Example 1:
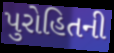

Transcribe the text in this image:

પુરોહિતની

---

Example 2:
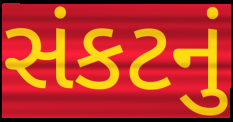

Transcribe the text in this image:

સંકટનું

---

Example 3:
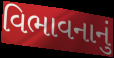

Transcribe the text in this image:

વિભાવનાનું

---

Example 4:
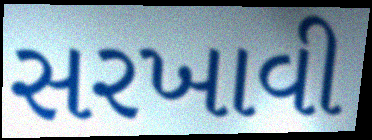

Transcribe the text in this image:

સરખાવી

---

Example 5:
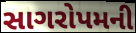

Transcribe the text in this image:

સાગરોપમની